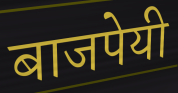
बाजपेयी